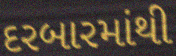
દરબારમાંથી